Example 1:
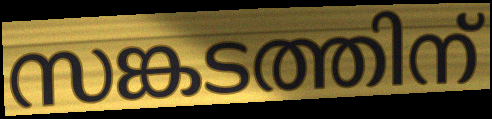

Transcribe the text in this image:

സങ്കടത്തിന്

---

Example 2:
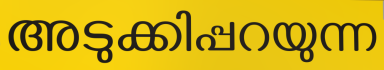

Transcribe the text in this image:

അടുക്കിപ്പറയുന്ന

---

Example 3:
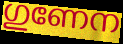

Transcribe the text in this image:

ഗുണേന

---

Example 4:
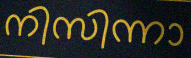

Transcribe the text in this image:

നിസിന്നാ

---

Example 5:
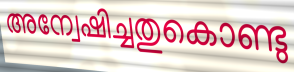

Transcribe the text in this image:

അന്വേഷിച്ചതുകൊണ്ടു